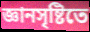
জ্ঞানসৃষ্টিতে